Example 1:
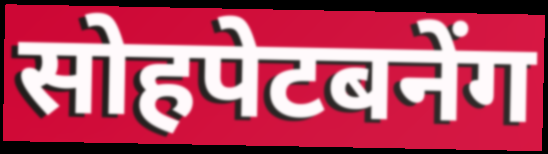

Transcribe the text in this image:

सोहपेटबनेंग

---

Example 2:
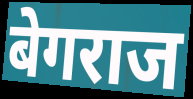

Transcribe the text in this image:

बेगराज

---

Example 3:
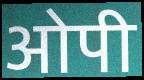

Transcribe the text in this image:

ओपी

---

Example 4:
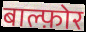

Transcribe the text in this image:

बाल्फ़ोर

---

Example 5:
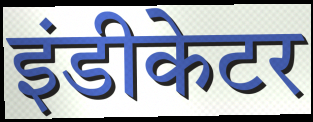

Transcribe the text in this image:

इंडीकेटर